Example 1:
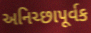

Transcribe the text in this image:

અનિચ્છાપૂર્વક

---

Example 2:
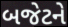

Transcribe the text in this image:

બજેટને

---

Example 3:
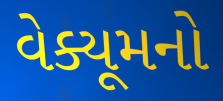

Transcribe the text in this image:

વેક્યૂમનો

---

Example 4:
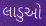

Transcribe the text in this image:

લાડુઓ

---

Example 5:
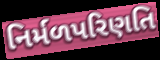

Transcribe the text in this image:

નિર્મળપરિણતિ